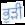
ਭੁੜੀ